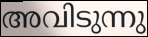
അവിടുന്നു